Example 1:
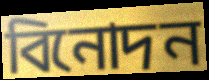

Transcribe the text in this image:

বিনোদন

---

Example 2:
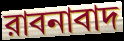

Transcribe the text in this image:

রাবনাবাদ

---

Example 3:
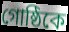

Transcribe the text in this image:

গোষ্ঠিকে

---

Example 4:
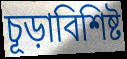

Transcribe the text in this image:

চূড়াবিশিষ্ট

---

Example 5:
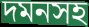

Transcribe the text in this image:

দমনসহ